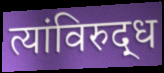
त्यांविरुद्ध